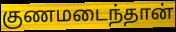
குணமடைந்தான்